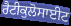
ਰੈਟੀਕੁਲੋਸਾਈਟ